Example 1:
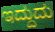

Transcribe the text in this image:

ಇದ್ದುದು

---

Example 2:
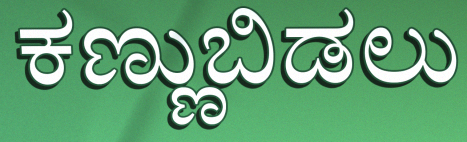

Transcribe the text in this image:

ಕಣ್ಣುಬಿಡಲು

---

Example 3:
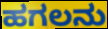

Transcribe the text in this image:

ಹಗಲನು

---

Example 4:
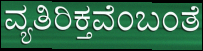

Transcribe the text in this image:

ವ್ಯತಿರಿಕ್ತವೆಂಬಂತೆ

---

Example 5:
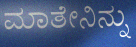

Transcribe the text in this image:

ಮಾತೇನಿನ್ನು